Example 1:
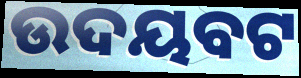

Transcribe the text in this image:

ଉଦୟବଟ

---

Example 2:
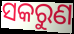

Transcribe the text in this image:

ସକରୁଣ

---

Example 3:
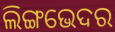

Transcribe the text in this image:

ଲିଙ୍ଗଭେଦର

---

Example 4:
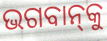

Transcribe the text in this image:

ଭଗବାନ୍‌କୁ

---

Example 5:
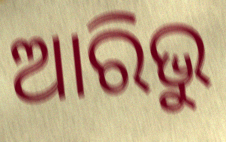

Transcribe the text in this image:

ଆରିଭୁ